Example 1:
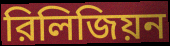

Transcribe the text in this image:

রিলিজিয়ন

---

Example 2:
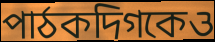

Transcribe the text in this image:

পাঠকদিগকেও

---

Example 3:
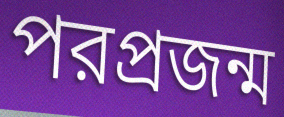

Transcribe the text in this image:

পরপ্রজন্ম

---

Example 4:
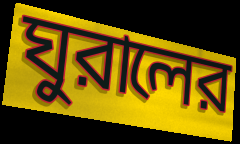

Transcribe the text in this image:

ঘুরালের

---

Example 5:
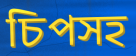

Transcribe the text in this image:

চিপসহ